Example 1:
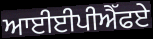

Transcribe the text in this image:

ਆਈਈਪੀਐੱਫਏ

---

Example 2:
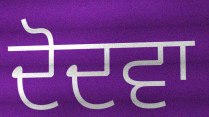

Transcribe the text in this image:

ਦੋਦਵਾ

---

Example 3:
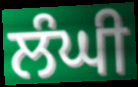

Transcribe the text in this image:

ਲੰਘੀ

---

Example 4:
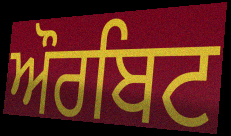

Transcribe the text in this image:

ਔਰਬਿਟ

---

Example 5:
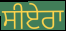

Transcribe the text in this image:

ਸੀਏਰਾ